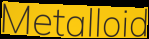
Metalloid